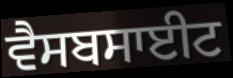
ਵੈਸਬਸਾਈਟ